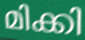
മിക്കി